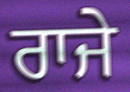
ਰਾਜੇ